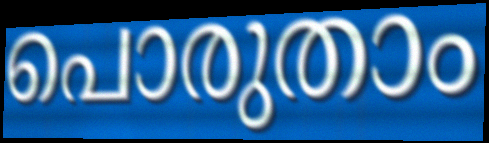
പൊരുതാം